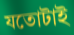
যতোটাই